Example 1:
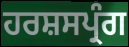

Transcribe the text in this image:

ਹਰਸ਼ਸਪ੍ਰੰਗ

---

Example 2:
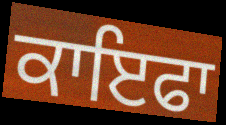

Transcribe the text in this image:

ਕਾਇਫਾ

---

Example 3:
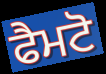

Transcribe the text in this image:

ਫੈਮਟੋ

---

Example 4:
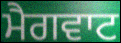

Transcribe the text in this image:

ਮੈਗਵਾਟ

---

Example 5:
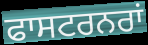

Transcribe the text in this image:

ਫਾਸਟਰਨਰਾਂ